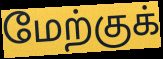
மேற்குக்